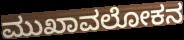
ಮುಖಾವಲೋಕನ